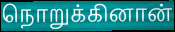
நொறுக்கினான்